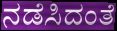
ನಡೆಸಿದಂತೆ